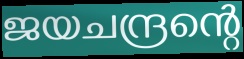
ജയചന്ദ്രന്റെ